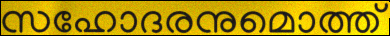
സഹോദരനുമൊത്ത്